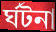
র্ঘটনা